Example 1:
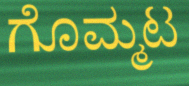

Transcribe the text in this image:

ಗೊಮ್ಮಟ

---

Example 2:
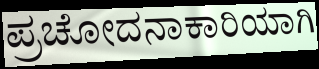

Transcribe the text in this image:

ಪ್ರಚೋದನಾಕಾರಿಯಾಗಿ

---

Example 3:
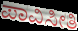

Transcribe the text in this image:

ಪಾವಿಸೀತಿ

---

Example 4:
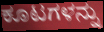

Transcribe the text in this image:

ಕೂಟಗಳನ್ನು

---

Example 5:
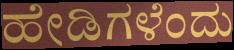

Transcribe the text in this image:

ಹೇಡಿಗಳೆಂದು